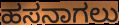
ಹಸನಾಗಲು